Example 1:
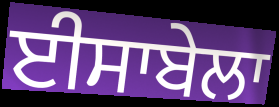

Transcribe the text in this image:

ਈਸਾਬੇਲਾ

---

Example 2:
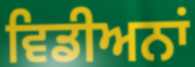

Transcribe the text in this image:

ਵਿਡੀਅਨਾਂ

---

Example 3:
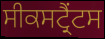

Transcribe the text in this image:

ਸੀਕਸਟ੍ਰੈਂਟਸ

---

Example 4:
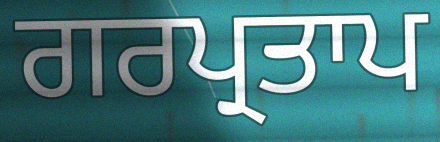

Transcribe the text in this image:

ਗਰਪ੍ਰਤਾਪ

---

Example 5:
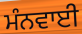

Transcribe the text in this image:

ਮੰਨਵਾਈ